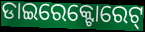
ଡାଇରେକ୍ଟୋରେଟ୍